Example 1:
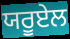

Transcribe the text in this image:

ਯਰੂਏਲ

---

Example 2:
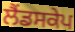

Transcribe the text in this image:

ਲੈਂਡਸਕੇਪ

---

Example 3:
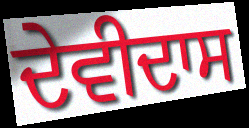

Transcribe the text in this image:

ਦੇਵੀਦਾਸ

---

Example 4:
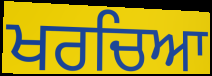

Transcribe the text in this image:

ਖਰਚਿਆ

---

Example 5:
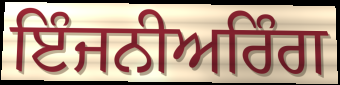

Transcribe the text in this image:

ਇੰਜਨੀਅਰਿੰਗ